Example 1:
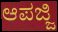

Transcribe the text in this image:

ಆಪಜ್ಜಿ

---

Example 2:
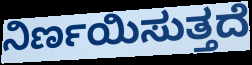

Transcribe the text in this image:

ನಿರ್ಣಯಿಸುತ್ತದೆ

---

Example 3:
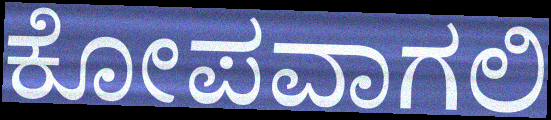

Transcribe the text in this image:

ಕೋಪವಾಗಲಿ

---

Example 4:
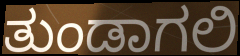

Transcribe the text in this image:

ತುಂಡಾಗಲಿ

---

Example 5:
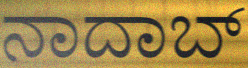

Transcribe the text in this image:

ನಾದಾಬ್